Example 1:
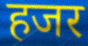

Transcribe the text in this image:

हजर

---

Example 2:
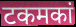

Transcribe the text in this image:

टकमकां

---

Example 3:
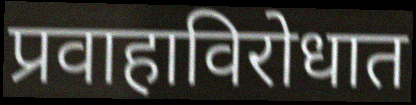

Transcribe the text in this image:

प्रवाहाविरोधात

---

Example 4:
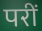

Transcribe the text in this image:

परीं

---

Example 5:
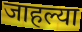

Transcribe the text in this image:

जाहल्या